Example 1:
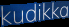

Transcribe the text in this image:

kudikka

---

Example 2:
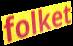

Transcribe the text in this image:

folket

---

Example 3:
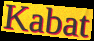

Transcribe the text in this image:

Kabat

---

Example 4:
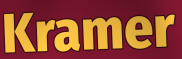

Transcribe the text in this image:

Kramer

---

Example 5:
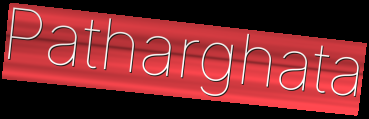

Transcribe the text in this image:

Patharghata